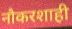
नौकरशाही